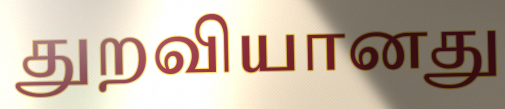
துறவியானது